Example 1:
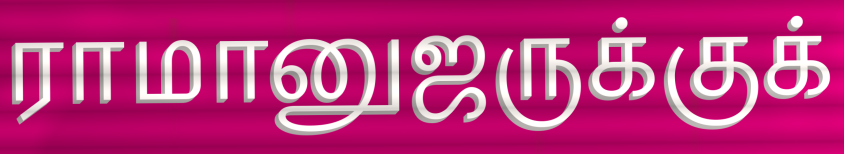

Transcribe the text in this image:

ராமானுஜருக்குக்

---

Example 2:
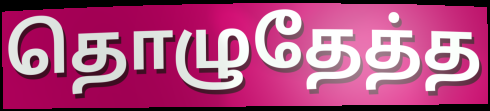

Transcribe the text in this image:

தொழுதேத்த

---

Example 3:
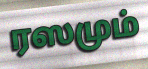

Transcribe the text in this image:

ரஸமும்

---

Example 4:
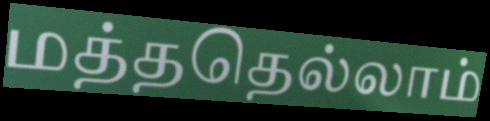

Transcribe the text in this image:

மத்ததெல்லாம்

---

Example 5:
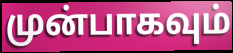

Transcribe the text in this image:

முன்பாகவும்